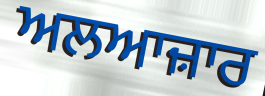
ਅਲਆਜ਼ਾਰ